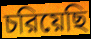
চরিয়েছি